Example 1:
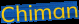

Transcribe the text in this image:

Chiman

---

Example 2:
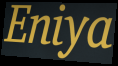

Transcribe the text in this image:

Eniya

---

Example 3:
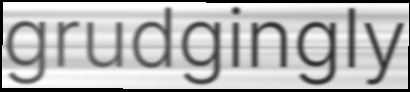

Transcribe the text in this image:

grudgingly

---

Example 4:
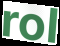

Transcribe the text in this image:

rol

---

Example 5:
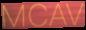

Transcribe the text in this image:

MCAV